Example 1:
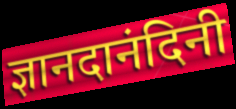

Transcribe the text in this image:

ज्ञानदानंदिनी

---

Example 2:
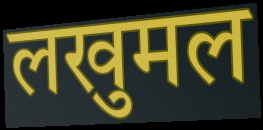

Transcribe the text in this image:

लखुमल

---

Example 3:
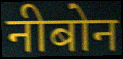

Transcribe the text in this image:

नीबोन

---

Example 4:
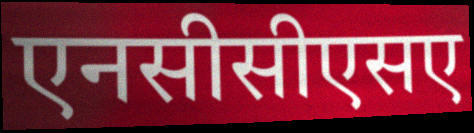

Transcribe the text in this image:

एनसीसीएसए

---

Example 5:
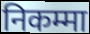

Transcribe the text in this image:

निकम्मा